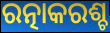
ରତ୍ନାକରଶ୍ଚ